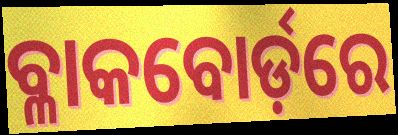
ବ୍ଳାକବୋର୍ଡ଼ରେ